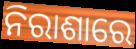
ନିରାଶାରେ